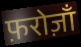
फ़रोज़ाँ